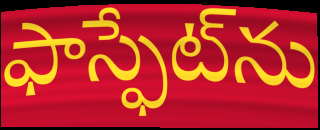
ఫాస్ఫేట్‌ను